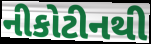
નીકોટીનથી